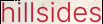
hillsides